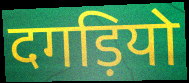
दगड़ियो